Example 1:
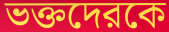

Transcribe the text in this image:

ভক্তদেরকে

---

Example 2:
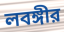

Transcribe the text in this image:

লবঙ্গীর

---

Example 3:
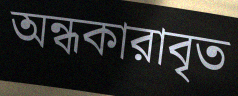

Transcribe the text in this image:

অন্ধকারাবৃত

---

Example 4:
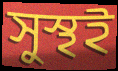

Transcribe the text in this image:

সুস্থই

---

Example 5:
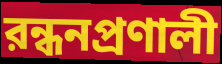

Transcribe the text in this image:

রন্ধনপ্রণালী